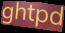
ghtpd